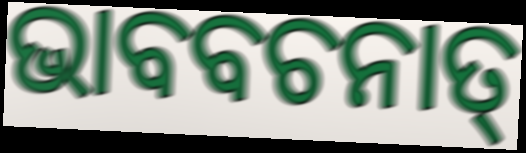
ଭାବବଚନାତ୍